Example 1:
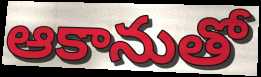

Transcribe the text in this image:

ఆకానుతో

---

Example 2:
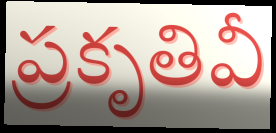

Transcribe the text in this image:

ప్రకృతివీ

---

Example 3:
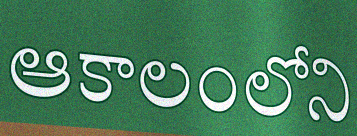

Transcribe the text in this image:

ఆకాలంలోని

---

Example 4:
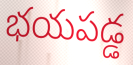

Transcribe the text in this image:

భయపడ్డ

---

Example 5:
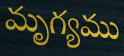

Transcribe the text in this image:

మృగ్యము